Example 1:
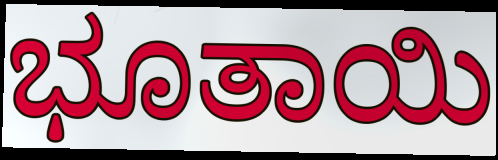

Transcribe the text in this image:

ಭೂತಾಯಿ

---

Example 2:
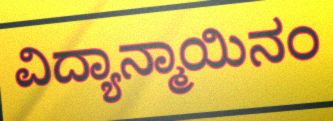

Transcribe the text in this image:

ವಿದ್ಯಾನ್ಮಾಯಿನಂ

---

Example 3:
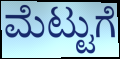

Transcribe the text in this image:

ಮೆಟ್ಟುಗೆ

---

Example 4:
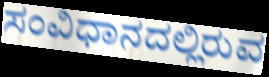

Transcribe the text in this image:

ಸಂವಿಧಾನದಲ್ಲಿರುವ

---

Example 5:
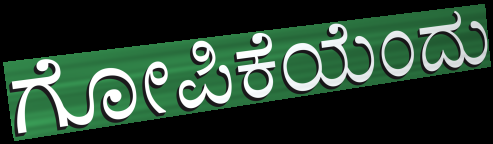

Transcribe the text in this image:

ಗೋಪಿಕೆಯೆಂದು